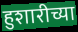
हुशारीच्या